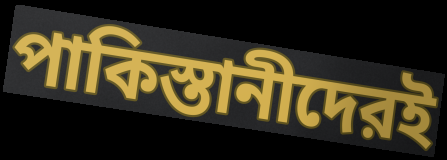
পাকিস্তানীদেরই